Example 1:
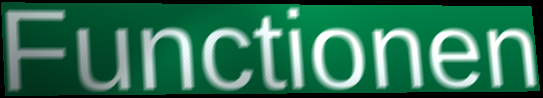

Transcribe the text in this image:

Functionen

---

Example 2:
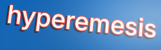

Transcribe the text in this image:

hyperemesis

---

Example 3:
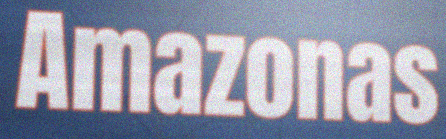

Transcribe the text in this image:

Amazonas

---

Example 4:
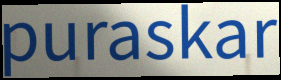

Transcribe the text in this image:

puraskar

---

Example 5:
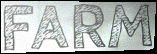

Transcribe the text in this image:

FARM